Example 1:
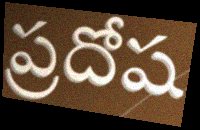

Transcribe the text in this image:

ప్రదోష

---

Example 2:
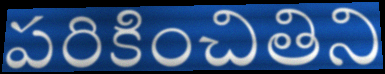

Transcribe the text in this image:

పరికించితిని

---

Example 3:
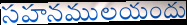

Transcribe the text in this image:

సహనములయందు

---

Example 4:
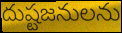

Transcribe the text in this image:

దుష్టజనులను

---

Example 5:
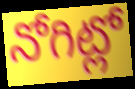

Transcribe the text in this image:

నోగిట్లో